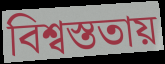
বিশ্বস্ততায়